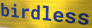
birdless